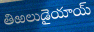
తిఱలుడైయాయ్